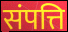
संपत्ति